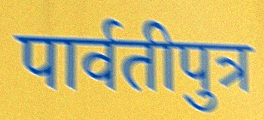
पार्वतीपुत्र